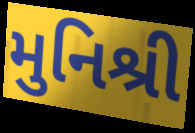
મુનિશ્રી